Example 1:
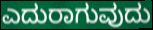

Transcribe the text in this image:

ಎದುರಾಗುವುದು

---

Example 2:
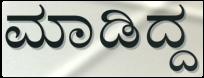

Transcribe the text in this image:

ಮಾಡಿದ್ದ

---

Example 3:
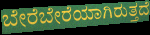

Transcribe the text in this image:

ಬೇರೆಬೇರೆಯಾಗಿರುತ್ತದೆ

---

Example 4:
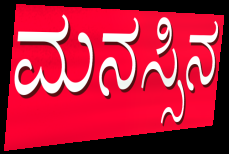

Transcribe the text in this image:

ಮನಸ್ಸಿನ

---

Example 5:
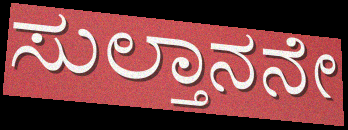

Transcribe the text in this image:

ಸುಲ್ತಾನನೇ